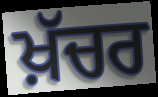
ਖ਼ੱਚਰ